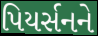
પિયર્સનને